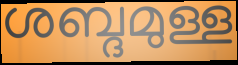
ശബ്ദമുള്ള